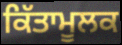
ਕਿੱਤਾਮੂਲਕ